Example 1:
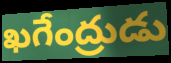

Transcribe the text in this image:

ఖగేంద్రుడు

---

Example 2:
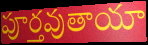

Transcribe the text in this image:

పూర్తవుతాయా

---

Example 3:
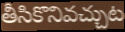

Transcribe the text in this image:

తీసికొనివచ్చుట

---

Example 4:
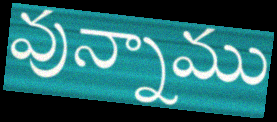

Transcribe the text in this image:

వున్నాము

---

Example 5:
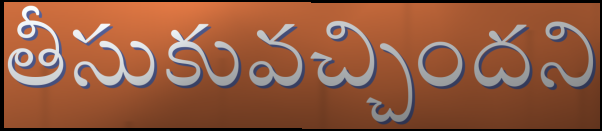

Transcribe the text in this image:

తీసుకువచ్చిందని